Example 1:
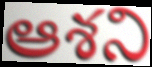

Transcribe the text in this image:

ఆశని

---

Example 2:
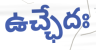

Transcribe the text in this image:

ఉచ్ఛేదః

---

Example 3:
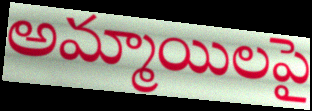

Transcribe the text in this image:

అమ్మాయిలపై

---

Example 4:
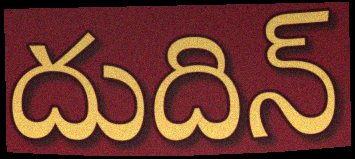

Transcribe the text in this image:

దుదిన్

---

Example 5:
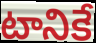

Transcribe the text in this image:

టానికే